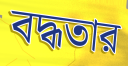
বদ্ধতার